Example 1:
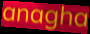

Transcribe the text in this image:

anagha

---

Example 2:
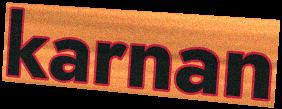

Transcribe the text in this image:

karnan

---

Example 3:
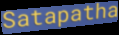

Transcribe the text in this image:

Satapatha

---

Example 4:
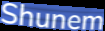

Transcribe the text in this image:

Shunem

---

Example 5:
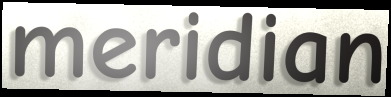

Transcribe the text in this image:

meridian